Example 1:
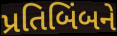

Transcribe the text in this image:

પ્રતિબિંબને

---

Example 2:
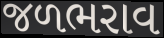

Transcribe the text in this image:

જળભરાવ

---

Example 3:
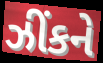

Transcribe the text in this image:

ઝીંકને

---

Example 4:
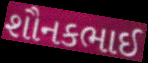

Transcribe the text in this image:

શૌનકભાઈ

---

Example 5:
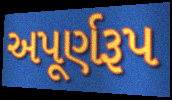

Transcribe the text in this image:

અપૂર્ણરૂપ